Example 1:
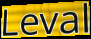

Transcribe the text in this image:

Leval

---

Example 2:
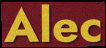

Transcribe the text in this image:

Alec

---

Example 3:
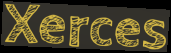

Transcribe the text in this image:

Xerces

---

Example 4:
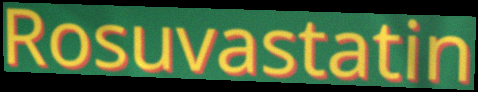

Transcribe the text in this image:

Rosuvastatin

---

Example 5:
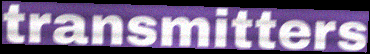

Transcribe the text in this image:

transmitters